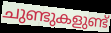
ചുണ്ടുകളുണ്ട്